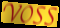
VOSS